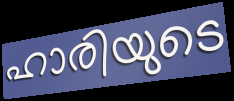
ഹാരിയുടെ